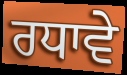
ਰਧਾਵੇ